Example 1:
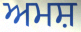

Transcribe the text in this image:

ਅਮਸ਼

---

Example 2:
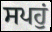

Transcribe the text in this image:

ਸਪਹੁਂ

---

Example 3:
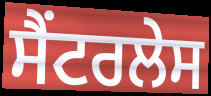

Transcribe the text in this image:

ਸੈਂਟਰਲੇਸ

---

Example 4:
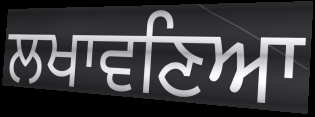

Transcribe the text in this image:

ਲਖਾਵਣਿਆ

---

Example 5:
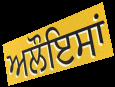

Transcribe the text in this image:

ਅਲੌਇਸਾਂ